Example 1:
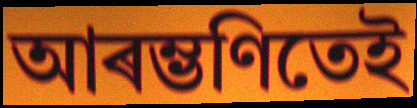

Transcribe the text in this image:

আৰম্ভণিতেই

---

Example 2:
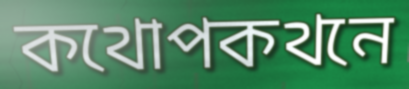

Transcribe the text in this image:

কথোপকথনে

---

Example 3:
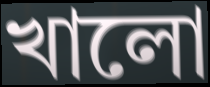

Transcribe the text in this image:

খালো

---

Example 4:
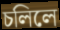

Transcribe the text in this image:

চলিলে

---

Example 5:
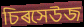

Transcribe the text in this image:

চিৰসেউজ